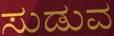
ಸುಡುವ